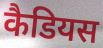
कैडियस